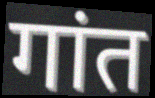
गांत